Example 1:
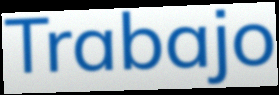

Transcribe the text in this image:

Trabajo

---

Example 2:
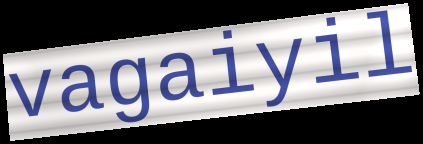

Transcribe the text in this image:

vagaiyil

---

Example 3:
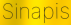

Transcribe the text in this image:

Sinapis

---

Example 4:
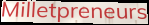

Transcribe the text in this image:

Milletpreneurs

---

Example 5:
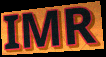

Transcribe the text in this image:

IMR